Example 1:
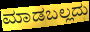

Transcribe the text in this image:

ಮಾಡಬಲ್ಲದು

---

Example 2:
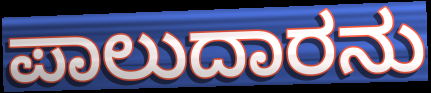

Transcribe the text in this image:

ಪಾಲುದಾರನು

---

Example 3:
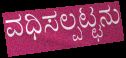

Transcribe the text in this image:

ವಧಿಸಲ್ಪಟ್ಟನು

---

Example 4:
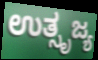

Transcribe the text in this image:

ಉತ್ಸೃಜ್ಯ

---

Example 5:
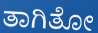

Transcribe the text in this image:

ತಾಗಿತೋ